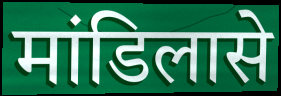
मांडिलासे